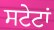
ਸਟੇਟਾਂ